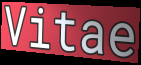
Vitae